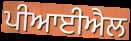
ਪੀਆਈਐਲ